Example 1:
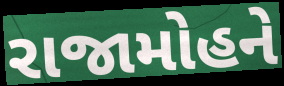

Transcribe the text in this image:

રાજામોહને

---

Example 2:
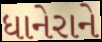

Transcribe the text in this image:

ધાનેરાને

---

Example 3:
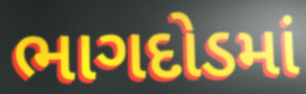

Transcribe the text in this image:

ભાગદોડમાં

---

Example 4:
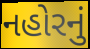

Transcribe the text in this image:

નહોરનું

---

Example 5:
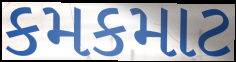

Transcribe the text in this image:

કમકમાટ